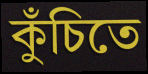
কুঁচিতে